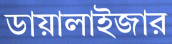
ডায়ালাইজার